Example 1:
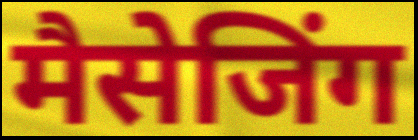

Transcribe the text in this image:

मैसेजिंग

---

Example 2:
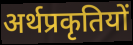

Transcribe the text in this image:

अर्थप्रकृतियों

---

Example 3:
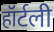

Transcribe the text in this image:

हॉर्टली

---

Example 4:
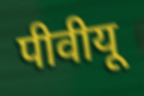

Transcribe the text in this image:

पीवीयू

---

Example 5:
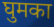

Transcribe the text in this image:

घुमका